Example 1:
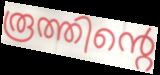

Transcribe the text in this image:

രൂത്തിന്റെ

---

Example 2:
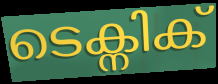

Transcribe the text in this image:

ടെക്നിക്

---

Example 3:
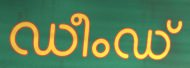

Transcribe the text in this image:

ഡീംഡ്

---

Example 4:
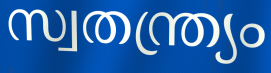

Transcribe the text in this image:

സ്വതന്ത്ര്യം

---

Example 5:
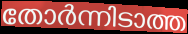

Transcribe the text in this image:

തോർന്നിടാത്ത